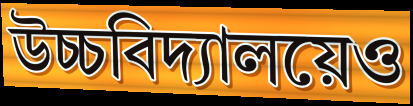
উচ্চবিদ্যালয়েও